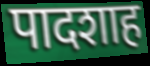
पादशाह